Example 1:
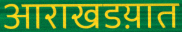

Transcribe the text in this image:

आराखडय़ात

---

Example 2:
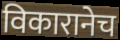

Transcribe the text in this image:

विकारानेच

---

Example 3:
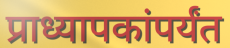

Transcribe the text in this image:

प्राध्यापकांपर्यंत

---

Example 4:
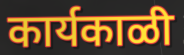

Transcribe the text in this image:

कार्यकाळी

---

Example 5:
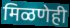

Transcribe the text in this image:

मिळणेही